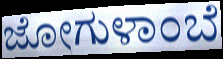
ಜೋಗುಳಾಂಬೆ